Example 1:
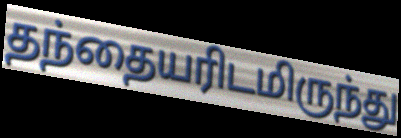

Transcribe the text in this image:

தந்தையரிடமிருந்து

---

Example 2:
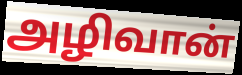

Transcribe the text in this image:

அழிவான்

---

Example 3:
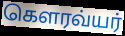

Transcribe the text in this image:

கௌரவ்யர்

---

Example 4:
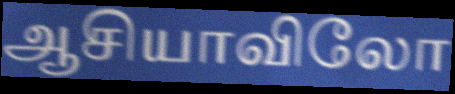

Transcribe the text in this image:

ஆசியாவிலோ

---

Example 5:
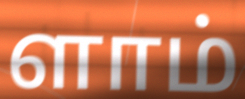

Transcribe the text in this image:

ளாம்